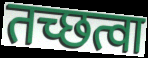
तच्छत्वा